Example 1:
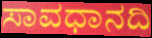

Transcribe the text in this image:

ಸಾವಧಾನದಿ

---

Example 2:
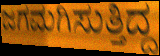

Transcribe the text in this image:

ಜಗಮಗಿಸುತ್ತಿದ್ದ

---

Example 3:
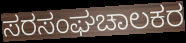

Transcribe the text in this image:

ಸರಸಂಘಚಾಲಕರ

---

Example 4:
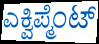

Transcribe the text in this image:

ಎಕ್ವಿಪ್ಮೆಂಟ್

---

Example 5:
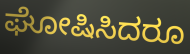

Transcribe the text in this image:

ಘೋಷಿಸಿದರೂ